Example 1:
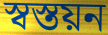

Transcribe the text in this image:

স্বস্তয়ন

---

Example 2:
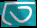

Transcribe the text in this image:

তে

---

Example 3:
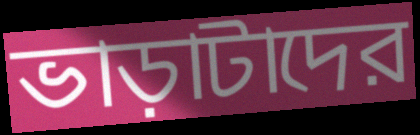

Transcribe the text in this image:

ভাড়াটাদের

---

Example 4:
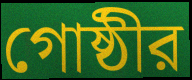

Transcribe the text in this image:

গোষ্ঠীর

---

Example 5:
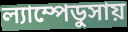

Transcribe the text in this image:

ল্যাম্পেডুসায়